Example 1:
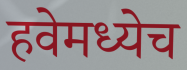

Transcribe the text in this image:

हवेमध्येच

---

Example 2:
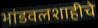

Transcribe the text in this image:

भांडवलशाहीचे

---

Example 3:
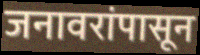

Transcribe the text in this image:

जनावरांपासून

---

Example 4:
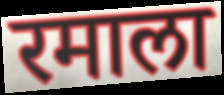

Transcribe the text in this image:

रमाला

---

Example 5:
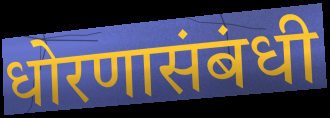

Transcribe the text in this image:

धोरणासंबंधी